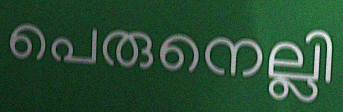
പെരുനെല്ലി